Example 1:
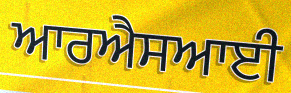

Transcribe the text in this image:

ਆਰਐਸਆਈ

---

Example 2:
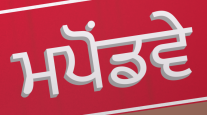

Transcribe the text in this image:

ਮਪੋਂਡਵੇ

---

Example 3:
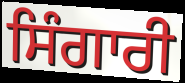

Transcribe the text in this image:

ਸਿੰਗਾਰੀ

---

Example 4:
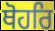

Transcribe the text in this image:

ਥੋਹਰਿ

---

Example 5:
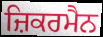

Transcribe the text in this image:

ਜ਼ਿਕਰਮੈਨ